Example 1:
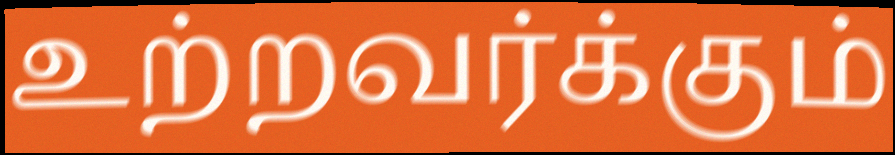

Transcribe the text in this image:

உற்றவர்க்கும்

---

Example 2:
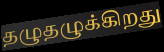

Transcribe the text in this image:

தழுதழுக்கிறது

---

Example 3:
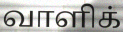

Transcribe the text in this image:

வாளிக்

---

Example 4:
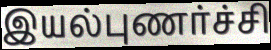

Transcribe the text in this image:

இயல்புணர்ச்சி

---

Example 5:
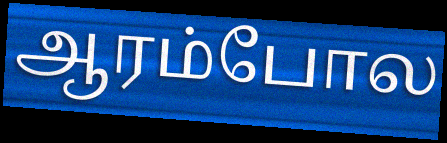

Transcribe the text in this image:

ஆரம்போல